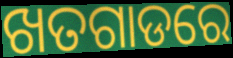
ଖତଗାଡରେ